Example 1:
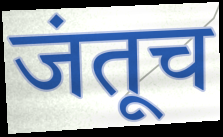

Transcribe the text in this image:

जंतूच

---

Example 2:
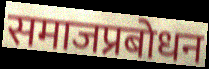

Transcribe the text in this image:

समाजप्रबोधन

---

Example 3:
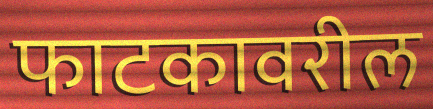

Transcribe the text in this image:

फाटकावरील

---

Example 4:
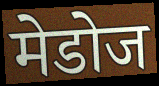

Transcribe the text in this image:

मेडोज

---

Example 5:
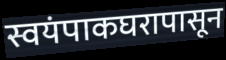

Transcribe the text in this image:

स्वयंपाकघरापासून